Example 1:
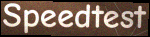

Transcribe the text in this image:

Speedtest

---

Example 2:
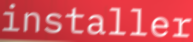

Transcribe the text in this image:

installer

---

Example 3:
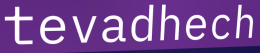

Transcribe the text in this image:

tevadhech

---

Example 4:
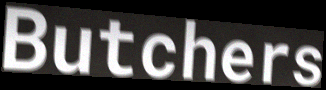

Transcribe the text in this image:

Butchers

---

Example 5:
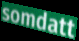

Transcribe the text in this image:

somdatt